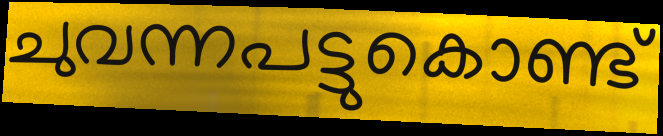
ചുവന്നപട്ടുകൊണ്ട്